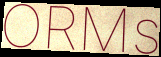
ORMs